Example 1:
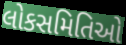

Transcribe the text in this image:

લોકસમિતિઓ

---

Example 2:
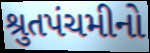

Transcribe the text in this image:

શ્રુતપંચમીનો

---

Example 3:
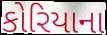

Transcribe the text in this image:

કોરિયાના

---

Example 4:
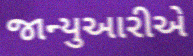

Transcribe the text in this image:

જાન્યુઆરીએ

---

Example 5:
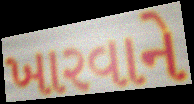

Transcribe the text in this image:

ખારવાને